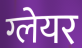
ग्लेयर